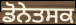
ਡੋਨੇਤਸਕ